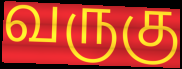
வருகு